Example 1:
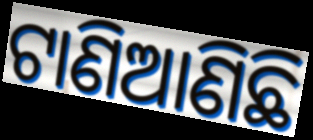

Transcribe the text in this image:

ଟାଣିଆଣିଛି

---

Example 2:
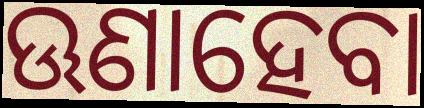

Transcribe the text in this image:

ଊଣାହେବା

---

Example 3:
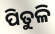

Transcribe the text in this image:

ପିତୁଳି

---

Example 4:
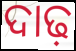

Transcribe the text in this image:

ଦାଢ଼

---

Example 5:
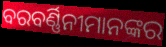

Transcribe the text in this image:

ବରବର୍ଣ୍ଣିନୀମାନଙ୍କର